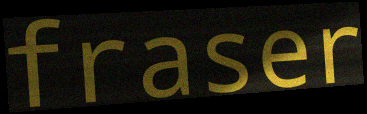
fraser